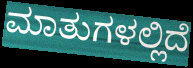
ಮಾತುಗಳಲ್ಲಿದೆ